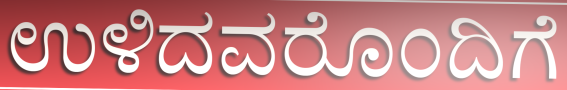
ಉಳಿದವರೊಂದಿಗೆ